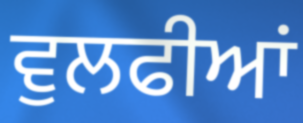
ਵੁਲਫੀਆਂ